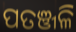
ପତଞ୍ଜଳି